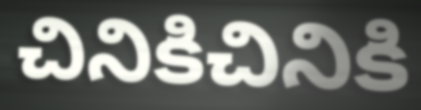
చినికిచినికి